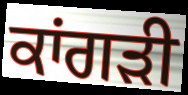
ਕਾਂਗੜੀ